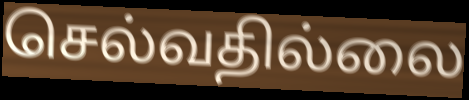
செல்வதில்லை